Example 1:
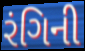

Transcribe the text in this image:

રંગિની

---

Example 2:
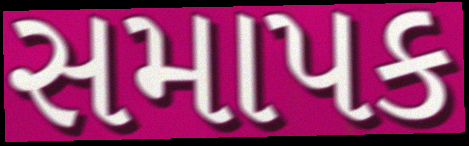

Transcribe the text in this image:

સમાપક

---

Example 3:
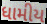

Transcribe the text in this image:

ધામીય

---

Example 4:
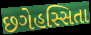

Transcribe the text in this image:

છગેહસ્સિતા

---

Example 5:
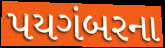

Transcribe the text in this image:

પયગંબરના